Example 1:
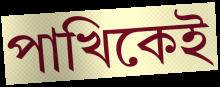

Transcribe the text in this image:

পাখিকেই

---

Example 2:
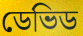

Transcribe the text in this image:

ডেভিড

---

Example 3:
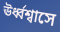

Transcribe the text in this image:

ঊর্ধ্বশ্বাসে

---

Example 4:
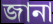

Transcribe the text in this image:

জানা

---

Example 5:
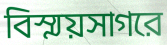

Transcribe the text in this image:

বিস্ময়সাগরে